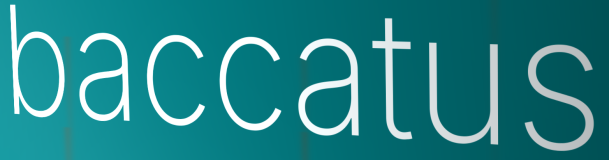
baccatus